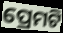
ପ୍ରେମଟି